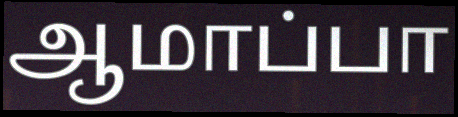
ஆமாப்பா